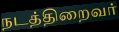
நடத்திறைவர்